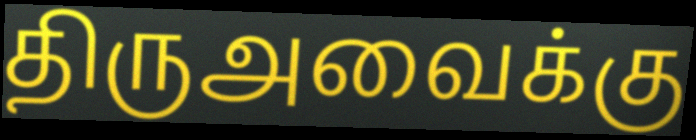
திருஅவைக்கு